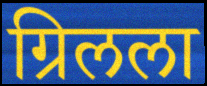
ग्रिलला